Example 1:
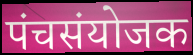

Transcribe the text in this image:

पंचसंयोजक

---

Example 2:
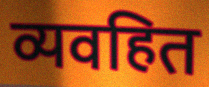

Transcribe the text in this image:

व्यवहित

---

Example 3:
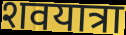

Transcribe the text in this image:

शवयात्रा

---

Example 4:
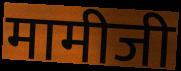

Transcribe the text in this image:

मामीजी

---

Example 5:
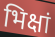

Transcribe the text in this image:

भिक्षां